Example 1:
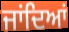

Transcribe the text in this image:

ਜਾਂਦਿਆਂ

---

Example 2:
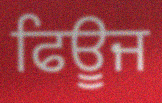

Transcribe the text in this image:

ਫਿਊਜ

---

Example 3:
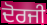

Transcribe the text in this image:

ਦੋਰਜੀ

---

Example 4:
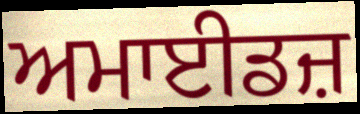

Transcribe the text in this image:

ਅਮਾਈਡਜ਼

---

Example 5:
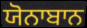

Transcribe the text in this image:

ਯੋਨਾਬਾਨ